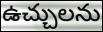
ఉచ్చులను